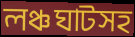
লঞ্চঘাটসহ